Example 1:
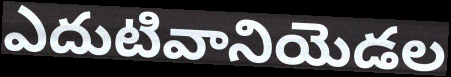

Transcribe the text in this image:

ఎదుటివానియెడల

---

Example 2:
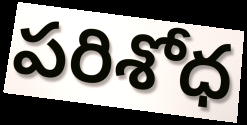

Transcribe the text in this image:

పరిశోధ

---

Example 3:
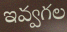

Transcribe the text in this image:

ఇవ్వగల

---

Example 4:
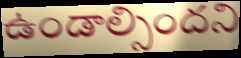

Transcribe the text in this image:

ఉండాల్సిందని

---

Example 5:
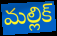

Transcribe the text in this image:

మల్లిక్